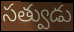
సత్వుడు